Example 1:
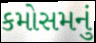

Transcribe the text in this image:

કમોસમનું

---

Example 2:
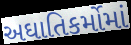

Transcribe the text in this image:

અઘાતિકર્મોમાં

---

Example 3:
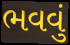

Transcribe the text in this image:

ભવવું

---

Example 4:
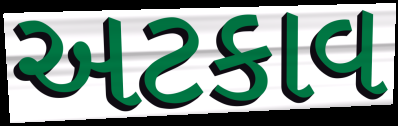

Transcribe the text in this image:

અટકાવ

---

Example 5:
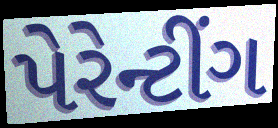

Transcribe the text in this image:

પેરેન્ટીંગ